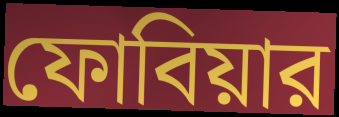
ফোবিয়ার